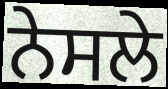
ਨੇਸਲੇ